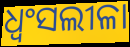
ଧ୍ୱଂସଲୀଳା